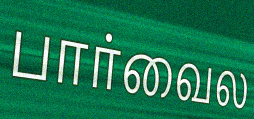
பார்வைல